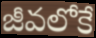
జీవలోకే